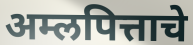
अम्लपित्ताचे